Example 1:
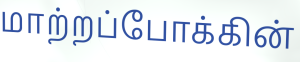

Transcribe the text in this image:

மாற்றப்போக்கின்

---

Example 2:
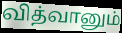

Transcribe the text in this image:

வித்வானும்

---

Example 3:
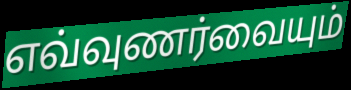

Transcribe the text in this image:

எவ்வுணர்வையும்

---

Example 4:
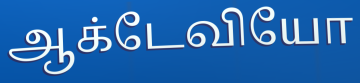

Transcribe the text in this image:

ஆக்டேவியோ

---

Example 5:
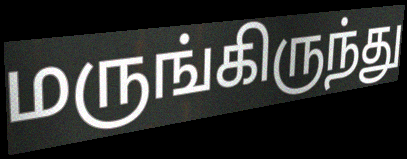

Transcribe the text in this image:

மருங்கிருந்து